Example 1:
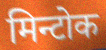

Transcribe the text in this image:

मिन्टोक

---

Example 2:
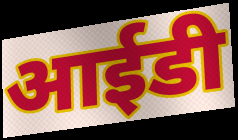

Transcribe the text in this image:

आईडी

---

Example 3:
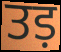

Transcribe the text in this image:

उड़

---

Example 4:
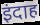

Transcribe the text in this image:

इंदाह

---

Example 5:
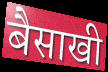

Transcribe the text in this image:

बैसाखी